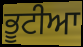
ਭੂਟੀਆ